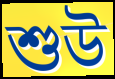
শুউ